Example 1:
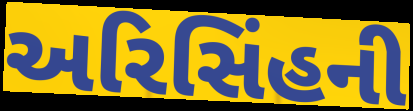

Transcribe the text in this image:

અરિસિંહની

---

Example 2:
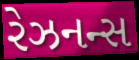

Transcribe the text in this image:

રેઝનન્સ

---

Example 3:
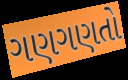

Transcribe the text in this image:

ગણગણતો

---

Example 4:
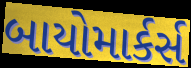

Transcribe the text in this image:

બાયોમાર્કર્સ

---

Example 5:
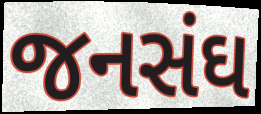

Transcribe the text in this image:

જનસંઘ